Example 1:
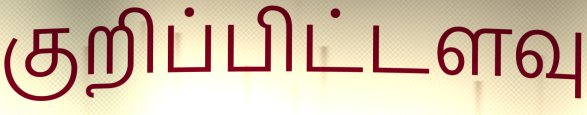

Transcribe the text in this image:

குறிப்பிட்டளவு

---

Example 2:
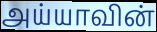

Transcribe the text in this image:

அய்யாவின்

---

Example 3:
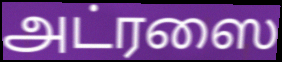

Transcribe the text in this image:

அட்ரஸை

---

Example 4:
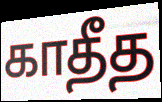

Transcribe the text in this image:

காதீத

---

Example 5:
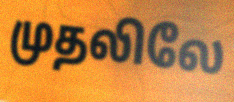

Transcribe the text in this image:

முதலிலே